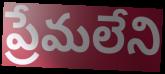
ప్రేమలేని